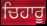
ਚਿਹਾਰੂ